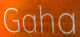
Gaha